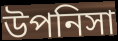
উপনিসা